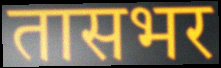
तासभर